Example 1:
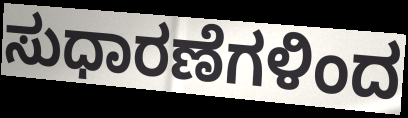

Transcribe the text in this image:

ಸುಧಾರಣೆಗಳಿಂದ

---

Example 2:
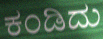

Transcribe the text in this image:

ಕಂಡಿದು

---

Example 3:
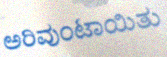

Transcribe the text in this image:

ಅರಿವುಂಟಾಯಿತು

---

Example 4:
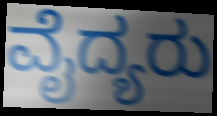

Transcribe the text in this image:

ವೈದ್ಯರು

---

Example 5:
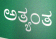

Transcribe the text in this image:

ಅತ್ಯಂತ